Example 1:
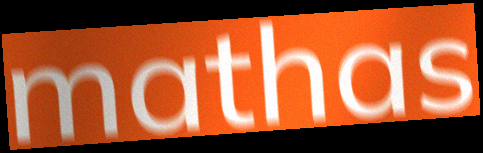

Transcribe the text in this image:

mathas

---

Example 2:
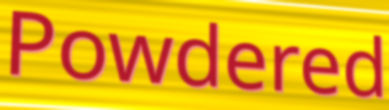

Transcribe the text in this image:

Powdered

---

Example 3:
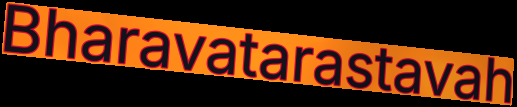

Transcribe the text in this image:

Bharavatarastavah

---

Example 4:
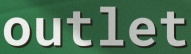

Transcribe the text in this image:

outlet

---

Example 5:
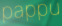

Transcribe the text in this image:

pappu